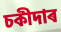
চকীদাৰ